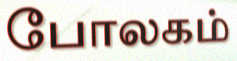
போலகம்